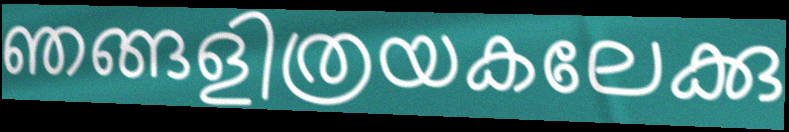
ഞങ്ങളിത്രയകലേക്കു